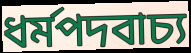
ধর্মপদবাচ্য